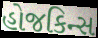
હોજકિન્સ